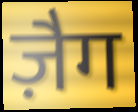
ज़ैग